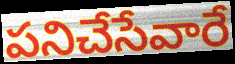
పనిచేసేవారే